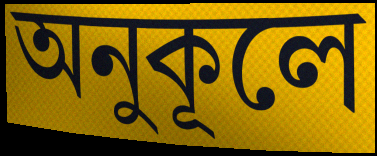
অনুকূলে